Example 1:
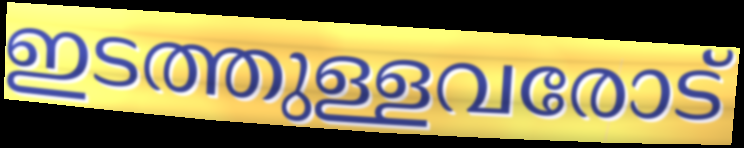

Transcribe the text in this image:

ഇടത്തുള്ളവരോട്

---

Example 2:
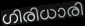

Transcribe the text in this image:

ഗിരിധാരി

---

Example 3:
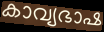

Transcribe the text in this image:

കാവ്യഭാഷ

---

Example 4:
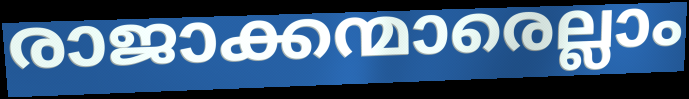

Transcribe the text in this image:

രാജാക്കന്മാരെല്ലാം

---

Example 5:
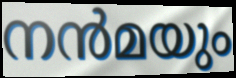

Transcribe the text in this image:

നൻമയും